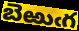
బెఱుఁగ